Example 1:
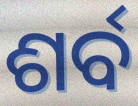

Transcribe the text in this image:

ଶର୍ବ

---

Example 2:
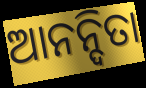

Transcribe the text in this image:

ଆନନ୍ଦିତା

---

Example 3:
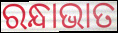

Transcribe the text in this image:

ରନ୍ଧାଭାତ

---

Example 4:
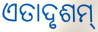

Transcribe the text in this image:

ଏତାଦୃଶମ୍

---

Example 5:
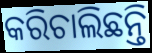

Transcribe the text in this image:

କରିଚାଲିଛନ୍ତି